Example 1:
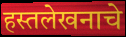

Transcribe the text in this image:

हस्तलेखनाचे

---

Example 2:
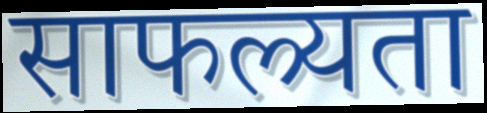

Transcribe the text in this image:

साफल्यता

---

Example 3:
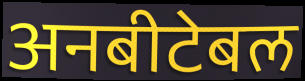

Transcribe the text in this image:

अनबीटेबल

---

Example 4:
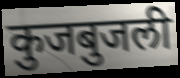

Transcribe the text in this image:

कुजबुजली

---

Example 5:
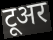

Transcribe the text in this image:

टूअर